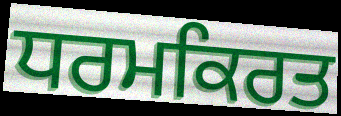
ਧਰਮਕਿਰਤ